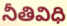
నీతివిధి